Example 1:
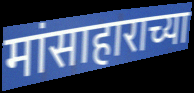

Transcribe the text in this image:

मांसाहाराच्या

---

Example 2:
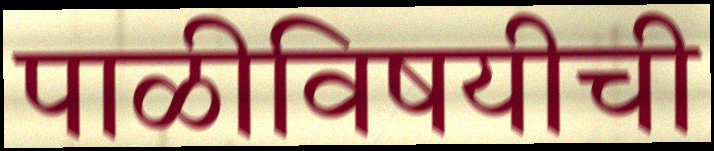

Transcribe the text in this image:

पाळीविषयीची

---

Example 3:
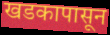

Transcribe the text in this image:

खडकापासून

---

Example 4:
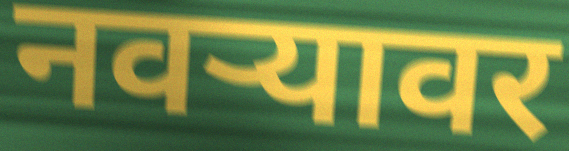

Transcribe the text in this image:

नवर्‍यावर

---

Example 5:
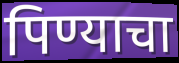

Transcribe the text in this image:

पिण्याचा